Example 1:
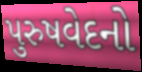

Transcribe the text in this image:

પુરુષવેદનો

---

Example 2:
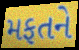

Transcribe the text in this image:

મફતને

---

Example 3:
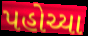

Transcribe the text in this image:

પહોચ્યા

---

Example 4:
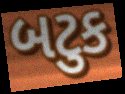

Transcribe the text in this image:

બટુક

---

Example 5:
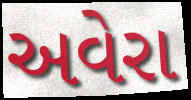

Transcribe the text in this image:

અવેરા